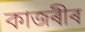
কাজৰীৰ